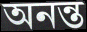
অনন্ত